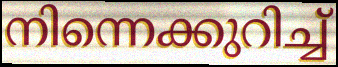
നിന്നെക്കുറിച്ച്